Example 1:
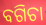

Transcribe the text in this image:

ବଗିଚା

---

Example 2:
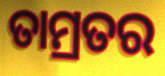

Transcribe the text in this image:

ତାମ୍ରତର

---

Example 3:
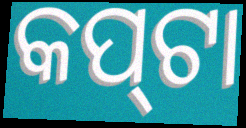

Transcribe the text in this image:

କପ୍‍ଟା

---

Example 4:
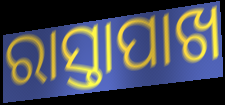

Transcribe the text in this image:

ରାସ୍ତାପାଖ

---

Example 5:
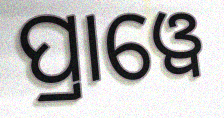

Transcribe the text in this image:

ପ୍ରାୱେ